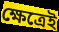
ক্ষেত্রেই